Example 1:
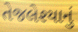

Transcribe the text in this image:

તેજલેશ્યાનું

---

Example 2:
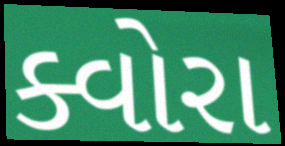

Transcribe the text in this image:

ક્વોરા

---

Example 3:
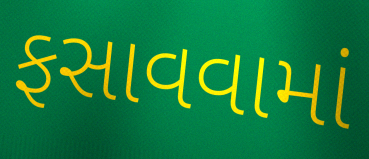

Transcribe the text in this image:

ફસાવવામાં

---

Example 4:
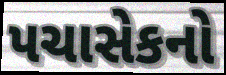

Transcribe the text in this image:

પચાસેકનો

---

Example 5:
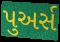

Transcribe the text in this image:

પુઅર્સ